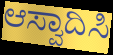
ಆಸ್ವಾದಿಸಿ